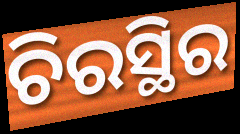
ଚିରସ୍ଥିର